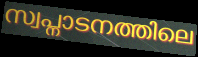
സ്വപ്നാടനത്തിലെ